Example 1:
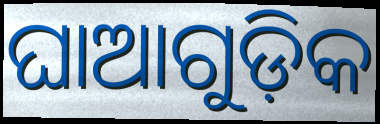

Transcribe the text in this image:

ଘାଆଗୁଡ଼ିକ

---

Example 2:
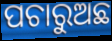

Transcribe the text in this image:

ପଚାରୁଅଛ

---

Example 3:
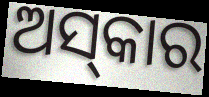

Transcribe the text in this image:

ଅସ୍‌କାର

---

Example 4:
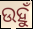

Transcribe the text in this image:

ଉହୁଁ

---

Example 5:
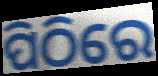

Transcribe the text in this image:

ପିଠିରେ